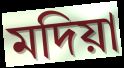
মদিয়া